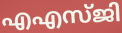
എഎസ്ജി